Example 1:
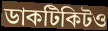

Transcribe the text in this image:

ডাকটিকিটও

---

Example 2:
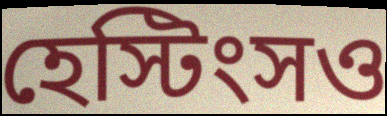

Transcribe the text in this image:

হেস্টিংসও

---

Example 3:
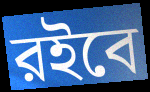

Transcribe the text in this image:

রইবে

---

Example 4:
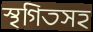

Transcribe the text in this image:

স্থগিতসহ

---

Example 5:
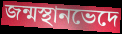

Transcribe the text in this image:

জন্মস্থানভেদে